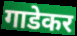
गाडेकर